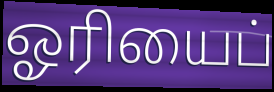
ஓரியைப்